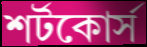
শর্টকোর্স